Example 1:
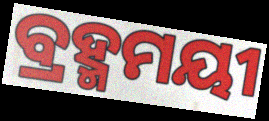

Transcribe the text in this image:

ବ୍ରହ୍ମମୟୀ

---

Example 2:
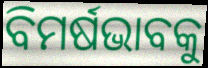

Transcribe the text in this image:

ବିମର୍ଷଭାବକୁ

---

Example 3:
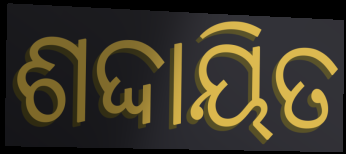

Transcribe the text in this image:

ଶଦ୍ଦାୟିତ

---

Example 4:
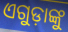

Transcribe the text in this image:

ଏଗୁଡ଼ାଙ୍କୁ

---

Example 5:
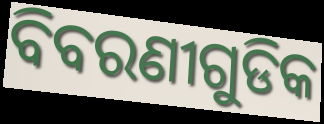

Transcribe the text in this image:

ବିବରଣୀଗୁଡିକ